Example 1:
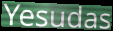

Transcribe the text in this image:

Yesudas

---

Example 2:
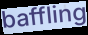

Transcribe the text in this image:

baffling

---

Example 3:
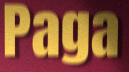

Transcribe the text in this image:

Paga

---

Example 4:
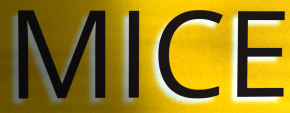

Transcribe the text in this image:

MICE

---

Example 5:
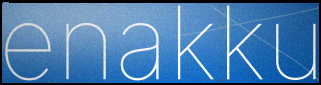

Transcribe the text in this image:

enakku